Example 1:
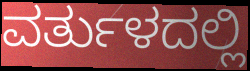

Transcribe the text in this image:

ವರ್ತುಳದಲ್ಲಿ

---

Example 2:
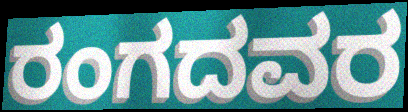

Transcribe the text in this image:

ರಂಗದವರ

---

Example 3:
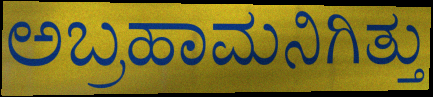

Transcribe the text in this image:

ಅಬ್ರಹಾಮನಿಗಿತ್ತು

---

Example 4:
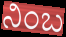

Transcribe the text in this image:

ನಿಂಬ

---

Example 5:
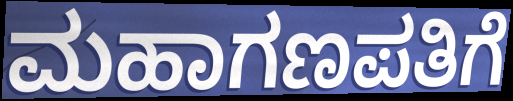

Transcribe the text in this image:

ಮಹಾಗಣಪತಿಗೆ